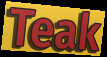
Teak